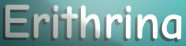
Erithrina